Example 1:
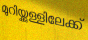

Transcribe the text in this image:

മുറിയ്ക്കുള്ളിലേക്ക്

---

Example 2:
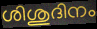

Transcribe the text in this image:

ശിശുദിനം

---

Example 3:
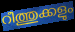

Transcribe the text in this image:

റീത്തുക്കളും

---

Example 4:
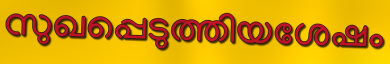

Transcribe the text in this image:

സുഖപ്പെടുത്തിയശേഷം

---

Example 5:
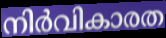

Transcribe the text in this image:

നിർവികാരത